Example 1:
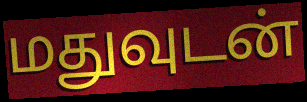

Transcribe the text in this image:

மதுவுடன்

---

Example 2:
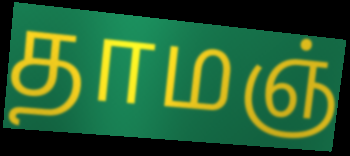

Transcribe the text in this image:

தாமஞ்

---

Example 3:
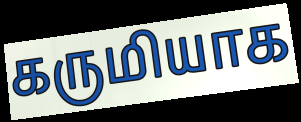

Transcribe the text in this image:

கருமியாக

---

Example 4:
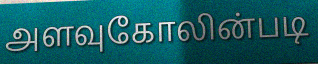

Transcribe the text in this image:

அளவுகோலின்படி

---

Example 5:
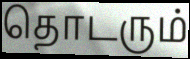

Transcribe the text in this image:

தொடரும்